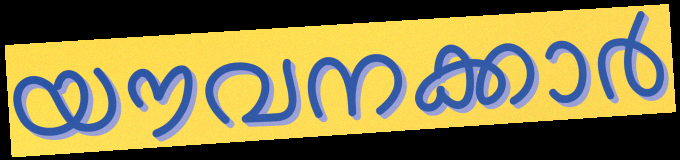
യൗവനക്കാർ